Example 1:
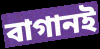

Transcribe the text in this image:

বাগানই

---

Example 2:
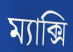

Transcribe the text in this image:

ম্যাক্সি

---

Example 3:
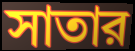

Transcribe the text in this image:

সাতার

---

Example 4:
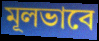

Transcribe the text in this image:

মূলভাবে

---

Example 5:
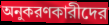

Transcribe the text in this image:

অনুকরণকারীদের